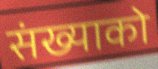
संख्याको